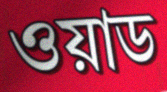
ওয়াড